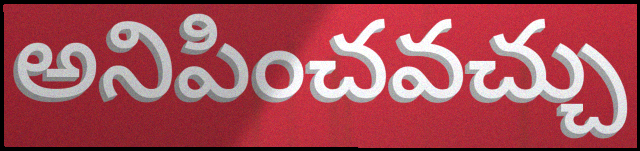
అనిపించవచ్చు